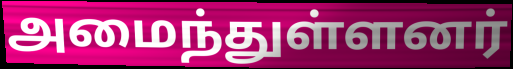
அமைந்துள்ளனர்